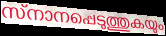
സ്‌നാനപ്പെടുത്തുകയും